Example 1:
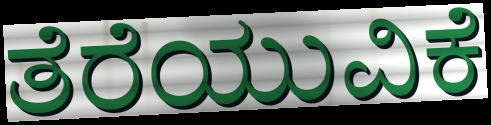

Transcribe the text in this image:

ತೆರೆಯುವಿಕೆ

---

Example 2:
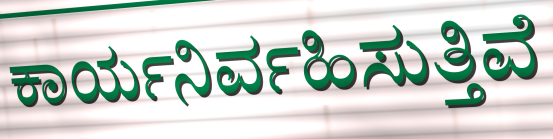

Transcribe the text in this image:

ಕಾರ್ಯನಿರ್ವಹಿಸುತ್ತಿವೆ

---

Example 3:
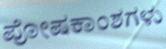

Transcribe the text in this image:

ಪೋಷಕಾಂಶಗಳು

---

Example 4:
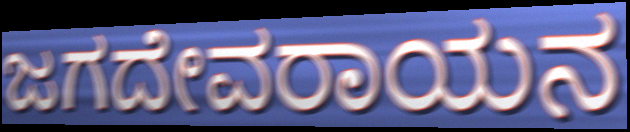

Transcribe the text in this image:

ಜಗದೇವರಾಯನ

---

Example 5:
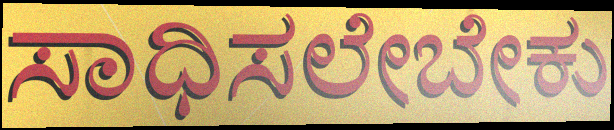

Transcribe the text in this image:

ಸಾಧಿಸಲೇಬೇಕು